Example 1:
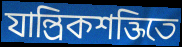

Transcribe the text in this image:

যান্ত্রিকশক্তিতে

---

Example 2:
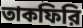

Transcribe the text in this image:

তাকফিরি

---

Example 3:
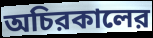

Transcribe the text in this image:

অচিরকালের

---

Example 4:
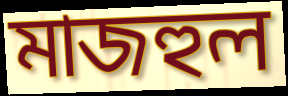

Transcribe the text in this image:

মাজহুল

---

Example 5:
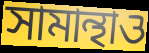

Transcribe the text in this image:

সামান্থাও